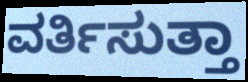
ವರ್ತಿಸುತ್ತಾ